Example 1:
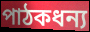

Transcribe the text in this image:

পাঠকধন্য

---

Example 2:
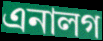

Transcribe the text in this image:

এনালগ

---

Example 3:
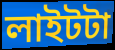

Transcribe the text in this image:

লাইটটা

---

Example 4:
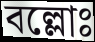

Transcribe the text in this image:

বল্লোঃ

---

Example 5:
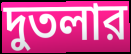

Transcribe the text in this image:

দুতলার